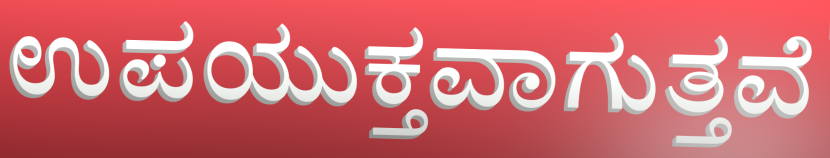
ಉಪಯುಕ್ತವಾಗುತ್ತವೆ